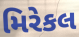
મિરેકલ